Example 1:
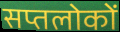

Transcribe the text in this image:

सप्तलोकों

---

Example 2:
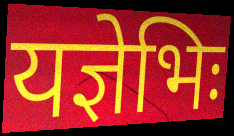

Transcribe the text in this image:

यज्ञेभिः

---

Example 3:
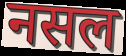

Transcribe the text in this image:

नसल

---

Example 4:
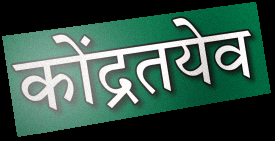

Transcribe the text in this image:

कोंद्रतयेव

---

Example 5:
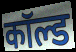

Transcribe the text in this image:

कॉल्ड